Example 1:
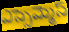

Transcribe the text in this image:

ఎస్సెమ్మెస్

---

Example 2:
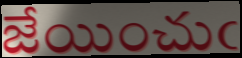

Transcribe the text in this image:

జేయించుఁ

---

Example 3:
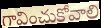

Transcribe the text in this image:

గావించుకోవాలి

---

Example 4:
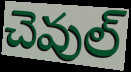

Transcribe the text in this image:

చెవుల్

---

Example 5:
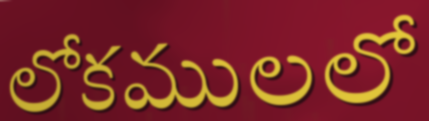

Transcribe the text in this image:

లోకములలో